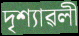
দৃশ্যাৱলী